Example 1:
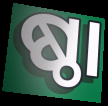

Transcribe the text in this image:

ଷ୍ଠା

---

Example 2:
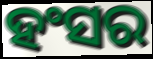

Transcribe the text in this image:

ହଂସର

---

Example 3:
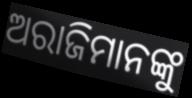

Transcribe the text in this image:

ଅରାଜିମାନଙ୍କୁ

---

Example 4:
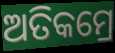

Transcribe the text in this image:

ଅତିକମ୍ରେ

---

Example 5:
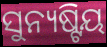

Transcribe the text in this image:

ସୁନ୍ୟଷ୍ଟିୟ